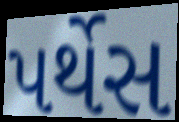
પર્થેસ